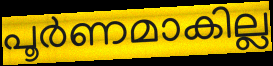
പൂർണമാകില്ല